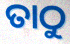
ତାଠୁ